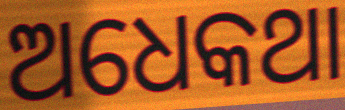
ଅଧେକଥା